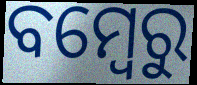
ବମ୍ବେରୁ